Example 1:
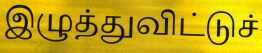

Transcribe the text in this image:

இழுத்துவிட்டுச்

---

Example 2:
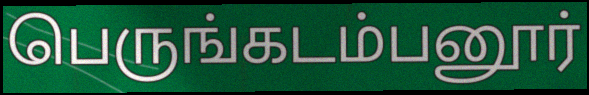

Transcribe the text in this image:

பெருங்கடம்பனூர்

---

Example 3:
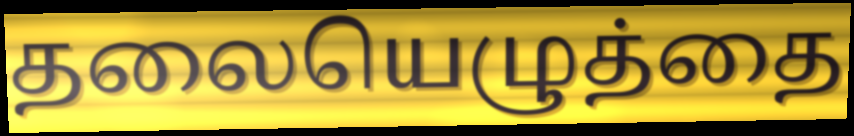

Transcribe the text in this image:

தலையெழுத்தை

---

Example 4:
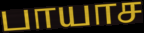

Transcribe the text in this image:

பாயாச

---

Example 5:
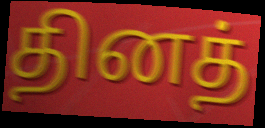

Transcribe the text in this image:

தினத்